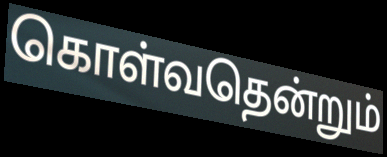
கொள்வதென்றும்